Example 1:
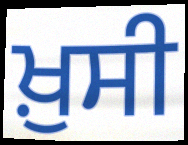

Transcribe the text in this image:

ਖ਼ੁਸੀ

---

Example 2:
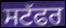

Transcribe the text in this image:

ਸਟੱਫਰ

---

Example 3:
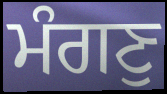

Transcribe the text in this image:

ਮੰਗਣੁ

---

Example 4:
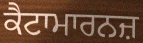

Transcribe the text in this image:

ਕੈਟਾਮਾਰਨਜ਼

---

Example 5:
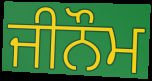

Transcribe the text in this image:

ਜੀਨੌਮ